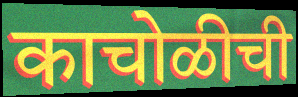
काचोळीची